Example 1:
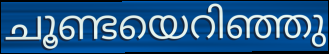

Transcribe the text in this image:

ചൂണ്ടയെറിഞ്ഞു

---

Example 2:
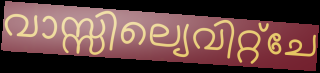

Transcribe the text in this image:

വാസ്സില്യെവിറ്റ്ചേ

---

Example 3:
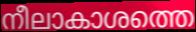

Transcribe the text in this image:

നീലാകാശത്തെ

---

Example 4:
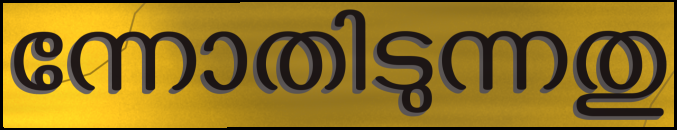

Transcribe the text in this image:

ന്നോതിടുന്നതു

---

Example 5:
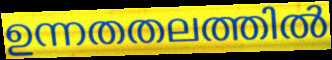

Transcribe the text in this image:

ഉന്നതതലത്തിൽ